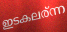
ഇടകലര്ന്ന